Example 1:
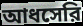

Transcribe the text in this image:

আধসেরি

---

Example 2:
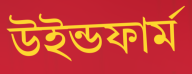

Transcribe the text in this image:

উইন্ডফার্ম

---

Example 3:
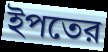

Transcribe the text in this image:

ইপতের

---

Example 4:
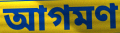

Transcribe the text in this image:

আগমণ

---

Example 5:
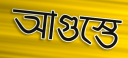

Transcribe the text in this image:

আগুস্তে